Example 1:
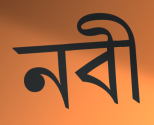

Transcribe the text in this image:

নবী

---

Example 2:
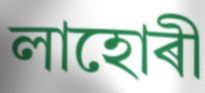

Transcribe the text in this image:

লাহোৰী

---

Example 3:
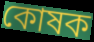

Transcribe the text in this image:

কোষক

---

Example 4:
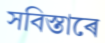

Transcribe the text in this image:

সবিস্তাৰে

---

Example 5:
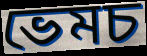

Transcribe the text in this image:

ভেমচ